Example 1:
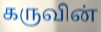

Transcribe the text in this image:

கருவின்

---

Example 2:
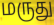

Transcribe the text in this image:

மருது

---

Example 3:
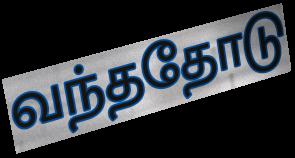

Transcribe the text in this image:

வந்ததோடு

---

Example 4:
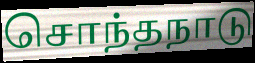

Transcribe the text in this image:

சொந்தநாடு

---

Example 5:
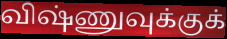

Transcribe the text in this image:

விஷ்ணுவுக்குக்